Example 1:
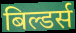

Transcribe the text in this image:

बिल्डर्स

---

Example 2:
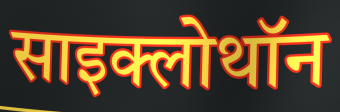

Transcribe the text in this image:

साइक्लोथॉन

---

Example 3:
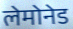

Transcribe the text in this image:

लेमोनेड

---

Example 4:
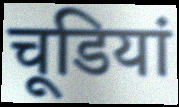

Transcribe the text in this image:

चूडियां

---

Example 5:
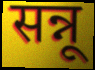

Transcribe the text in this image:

सन्नू